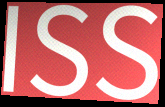
ISS